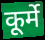
कूर्मे